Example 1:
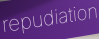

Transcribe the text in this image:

repudiation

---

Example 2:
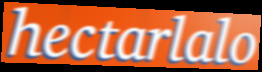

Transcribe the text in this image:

hectarlalo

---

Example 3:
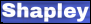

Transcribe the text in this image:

Shapley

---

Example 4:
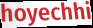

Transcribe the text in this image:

hoyechhi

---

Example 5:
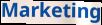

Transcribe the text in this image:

Marketing